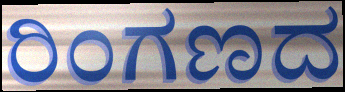
ರಿಂಗಣದ